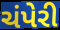
ચંપેરી